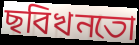
ছবিখনতো